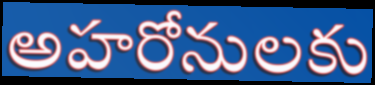
అహరోనులకు